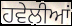
ਹਵੇਲੀਆਂ